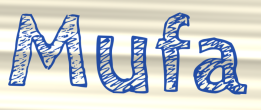
Mufa